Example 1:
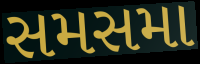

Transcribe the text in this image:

સમસમા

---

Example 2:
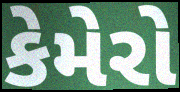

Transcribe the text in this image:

કેમેરો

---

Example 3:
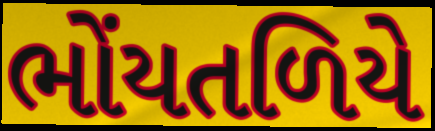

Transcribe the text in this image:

ભોંયતળિયે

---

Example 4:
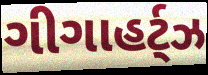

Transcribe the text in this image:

ગીગાહર્ટ્ઝ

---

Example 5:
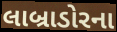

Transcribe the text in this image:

લાબ્રાડોરના